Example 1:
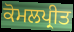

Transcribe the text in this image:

ਕੋਮਲਪ੍ਰੀਤ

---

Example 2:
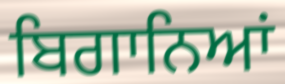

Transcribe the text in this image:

ਬਿਗਾਨਿਆਂ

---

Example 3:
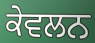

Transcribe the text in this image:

ਕੇਵਲਨ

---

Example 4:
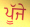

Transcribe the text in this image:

ਪੂੱਜੇ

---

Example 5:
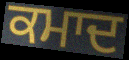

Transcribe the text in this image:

ਕਮਾਦ